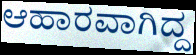
ಆಹಾರವಾಗಿದ್ದ